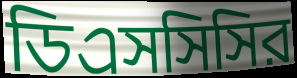
ডিএসসিসির